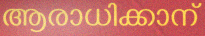
ആരാധിക്കാന്